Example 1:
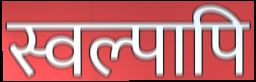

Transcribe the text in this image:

स्वल्पापि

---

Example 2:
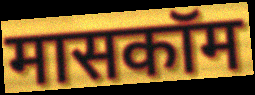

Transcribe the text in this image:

मासकॉम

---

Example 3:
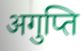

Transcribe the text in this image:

अगुप्ति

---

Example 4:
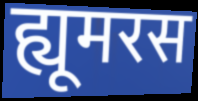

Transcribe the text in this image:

ह्यूमरस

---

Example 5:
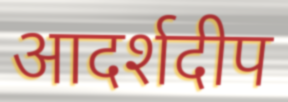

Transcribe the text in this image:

आदर्शदीप